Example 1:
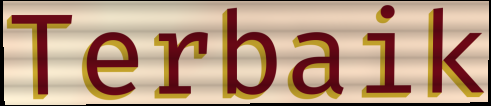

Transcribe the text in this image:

Terbaik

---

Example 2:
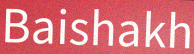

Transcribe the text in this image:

Baishakh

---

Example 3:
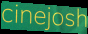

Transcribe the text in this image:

cinejosh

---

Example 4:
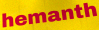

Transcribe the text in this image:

hemanth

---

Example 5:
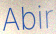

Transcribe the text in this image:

Abir